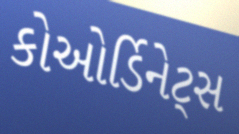
કોઓર્ડિનેટ્સ